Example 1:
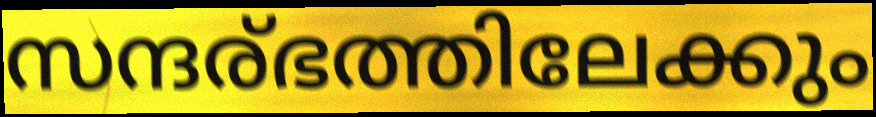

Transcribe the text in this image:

സന്ദര്ഭത്തിലേക്കും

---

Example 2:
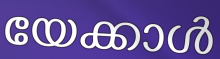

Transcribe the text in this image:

യേക്കാൾ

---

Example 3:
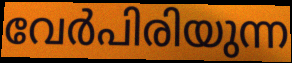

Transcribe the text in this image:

വേർപിരിയുന്ന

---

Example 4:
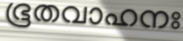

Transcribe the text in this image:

ഭൂതവാഹനഃ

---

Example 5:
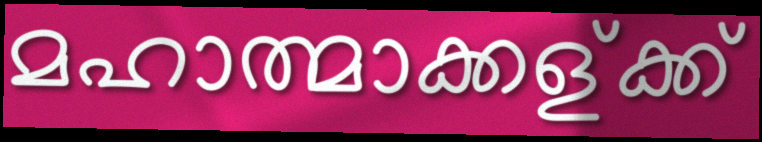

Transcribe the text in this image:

മഹാത്മാക്കള്ക്ക്